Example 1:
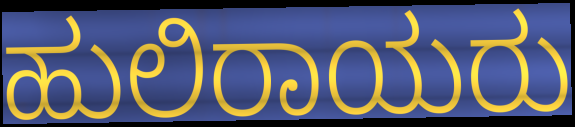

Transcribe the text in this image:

ಹುಲಿರಾಯರು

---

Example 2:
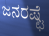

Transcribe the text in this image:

ಜನರಷ್ಟೆ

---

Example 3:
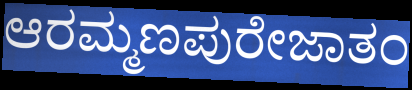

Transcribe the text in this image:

ಆರಮ್ಮಣಪುರೇಜಾತಂ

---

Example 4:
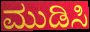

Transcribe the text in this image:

ಮುಡಿಸಿ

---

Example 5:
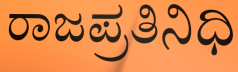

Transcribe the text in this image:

ರಾಜಪ್ರತಿನಿಧಿ